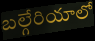
బల్గేరియాలో